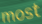
most